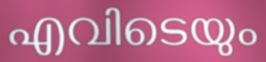
എവിടെയും